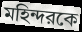
মহিন্দরকে